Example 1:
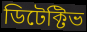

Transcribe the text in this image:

ডিটেক্টিভ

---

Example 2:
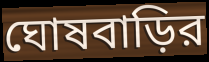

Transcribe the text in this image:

ঘোষবাড়ির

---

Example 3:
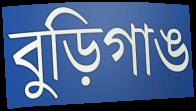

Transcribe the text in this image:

বুড়িগাঙ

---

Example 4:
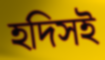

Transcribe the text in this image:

হদিসই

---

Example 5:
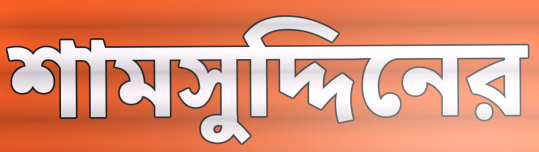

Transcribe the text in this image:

শামসুদ্দিনের